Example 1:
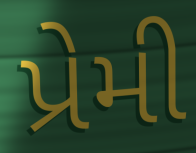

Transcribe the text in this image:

પ્રેમી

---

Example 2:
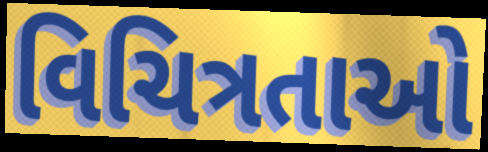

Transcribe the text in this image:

વિચિત્રતાઓ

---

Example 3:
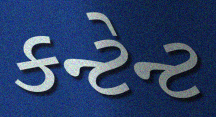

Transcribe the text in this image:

કન્ટેન્ટ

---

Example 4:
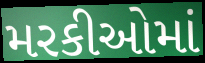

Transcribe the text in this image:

મરકીઓમાં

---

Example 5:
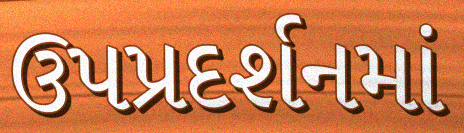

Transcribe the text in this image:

ઉપપ્રદર્શનમાં